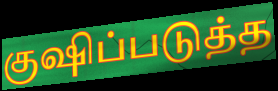
குஷிப்படுத்த